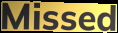
Missed